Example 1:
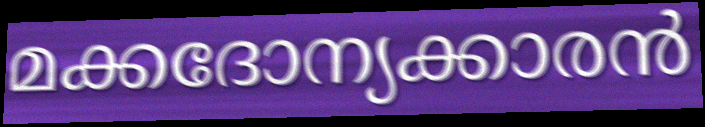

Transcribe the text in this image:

മക്കദോന്യക്കാരൻ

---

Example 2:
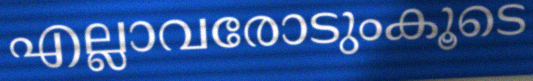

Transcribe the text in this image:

എല്ലാവരോടുംകൂടെ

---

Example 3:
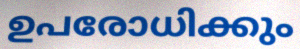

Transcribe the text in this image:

ഉപരോധിക്കും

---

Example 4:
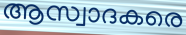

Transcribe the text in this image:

ആസ്വാദകരെ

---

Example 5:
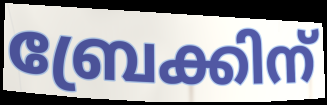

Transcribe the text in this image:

ബ്രേക്കിന്